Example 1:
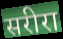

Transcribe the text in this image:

सरीरा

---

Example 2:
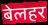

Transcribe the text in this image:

बेलहर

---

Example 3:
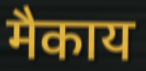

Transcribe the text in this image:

मैकाय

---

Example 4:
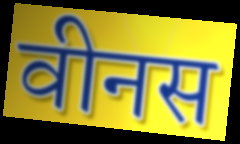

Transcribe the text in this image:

वीनस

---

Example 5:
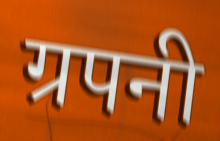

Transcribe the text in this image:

ग्रपनी